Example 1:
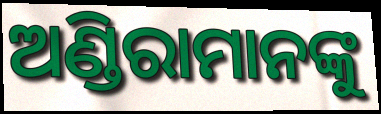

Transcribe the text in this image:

ଅଣ୍ଡିରାମାନଙ୍କୁ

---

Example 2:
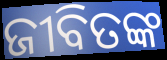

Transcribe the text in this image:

ଜୀବିତଙ୍କ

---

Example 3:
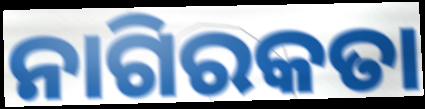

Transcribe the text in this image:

ନାଗିରକତା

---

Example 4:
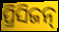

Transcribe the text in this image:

ପ୍ରିସିଜନ୍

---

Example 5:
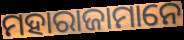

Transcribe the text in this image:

ମହାରାଜାମାନେ